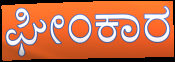
ಘೀಂಕಾರ